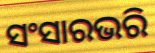
ସଂସାରଭରି